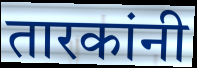
तारकांनी